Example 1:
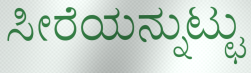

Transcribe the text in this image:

ಸೀರೆಯನ್ನುಟ್ಟು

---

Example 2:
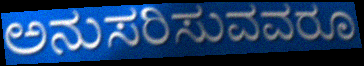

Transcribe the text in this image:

ಅನುಸರಿಸುವವರೂ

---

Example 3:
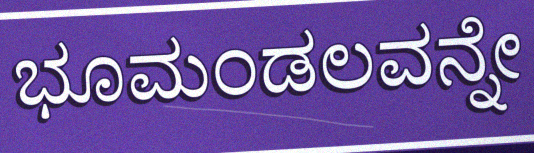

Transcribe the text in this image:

ಭೂಮಂಡಲವನ್ನೇ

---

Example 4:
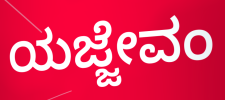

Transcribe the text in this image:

ಯಜ್ಜೇವಂ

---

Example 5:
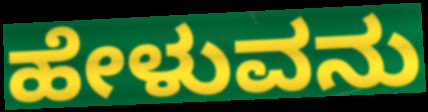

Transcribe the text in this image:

ಹೇಳುವನು